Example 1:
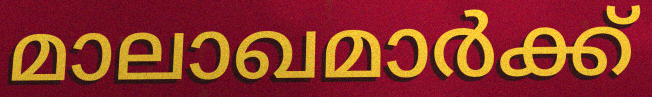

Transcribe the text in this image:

മാലാഖമാർക്ക്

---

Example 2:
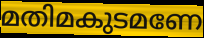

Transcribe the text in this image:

മതിമകുടമണേ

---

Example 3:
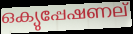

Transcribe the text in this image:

ഒക്യുപ്പേഷണല്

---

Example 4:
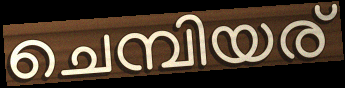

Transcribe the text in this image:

ചെമ്പിയര്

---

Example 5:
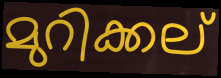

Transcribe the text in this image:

മുറിക്കല്